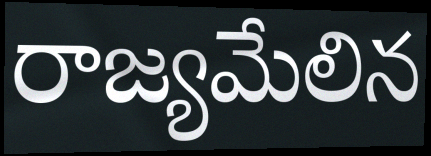
రాజ్యమేలిన